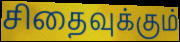
சிதைவுக்கும்